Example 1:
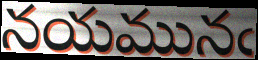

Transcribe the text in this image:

నయమునఁ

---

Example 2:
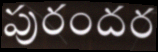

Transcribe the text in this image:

పురందర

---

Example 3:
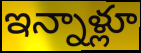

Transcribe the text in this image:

ఇన్నాళ్లూ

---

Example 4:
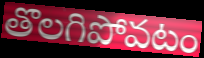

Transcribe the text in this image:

తొలగిపోవటం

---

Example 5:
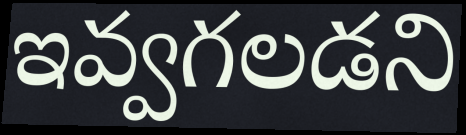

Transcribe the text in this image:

ఇవ్వగలడని